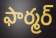
ఫార్మర్